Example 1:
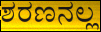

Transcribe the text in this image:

ಶರಣನಲ್ಲ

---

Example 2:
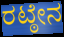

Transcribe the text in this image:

ರಟ್ಠೇನ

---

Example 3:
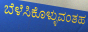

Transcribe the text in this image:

ಬೆಳೆಸಿಕೊಳ್ಳುವಂತಹ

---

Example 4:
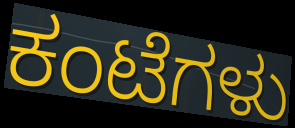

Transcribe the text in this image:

ಕಂಟೆಗಳು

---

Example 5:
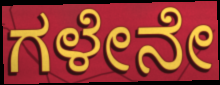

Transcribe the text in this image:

ಗಳೇನೇ